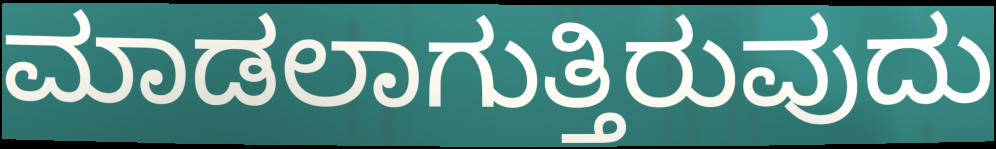
ಮಾಡಲಾಗುತ್ತಿರುವುದು